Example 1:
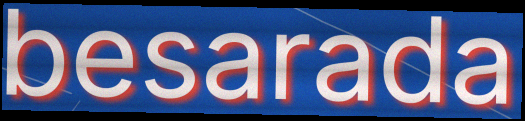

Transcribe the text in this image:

besarada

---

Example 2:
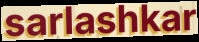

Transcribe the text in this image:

sarlashkar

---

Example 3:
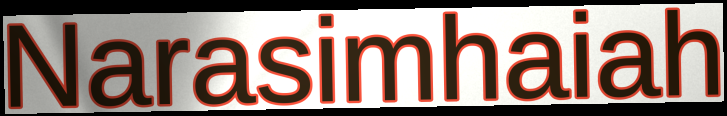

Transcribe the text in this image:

Narasimhaiah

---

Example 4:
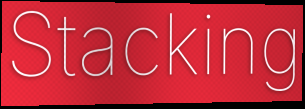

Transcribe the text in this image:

Stacking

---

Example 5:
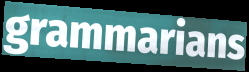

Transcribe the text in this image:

grammarians